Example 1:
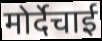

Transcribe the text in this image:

मोर्देचाई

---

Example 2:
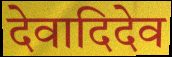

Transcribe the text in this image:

देवादिदेव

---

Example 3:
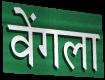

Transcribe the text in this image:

वेंगला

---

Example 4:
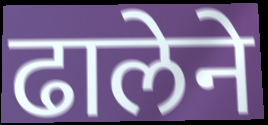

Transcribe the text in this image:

ढालेने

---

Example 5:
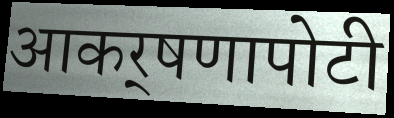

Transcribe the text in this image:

आकर्षणापोटी